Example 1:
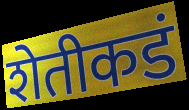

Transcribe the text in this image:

शेतीकडं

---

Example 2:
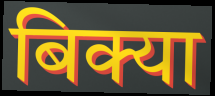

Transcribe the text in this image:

बिक्या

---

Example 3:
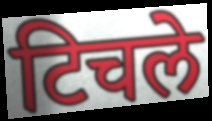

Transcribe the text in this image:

टिचले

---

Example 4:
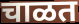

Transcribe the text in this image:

चाळत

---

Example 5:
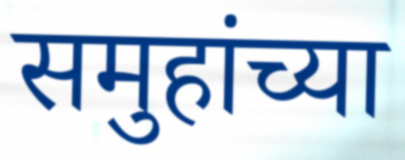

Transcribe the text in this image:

समुहांच्या